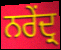
ਨਰੇਂਦ੍ਰ